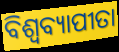
ବିଶ୍ୱବ୍ୟାପୀତା